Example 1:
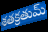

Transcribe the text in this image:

శతక్రతుమ్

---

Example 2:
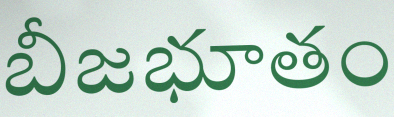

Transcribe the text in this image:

బీజభూతం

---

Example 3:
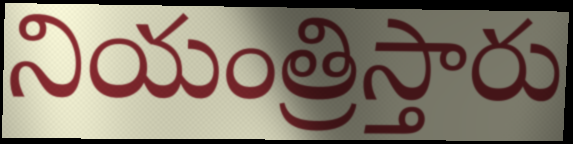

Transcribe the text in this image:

నియంత్రిస్తారు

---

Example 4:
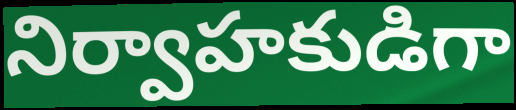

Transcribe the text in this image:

నిర్వాహకుడిగా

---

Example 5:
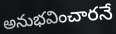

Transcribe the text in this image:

అనుభవించారనే